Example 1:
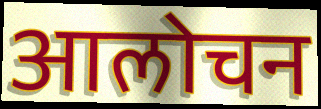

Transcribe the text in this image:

आलोचन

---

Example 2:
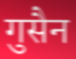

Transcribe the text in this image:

गुसैन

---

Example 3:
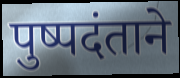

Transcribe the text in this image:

पुष्पदंताने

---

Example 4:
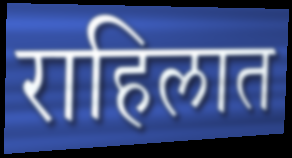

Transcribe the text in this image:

राहिलात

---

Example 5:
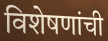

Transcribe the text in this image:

विशेषणांची